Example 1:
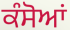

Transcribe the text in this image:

ਕੰਸੋਆਂ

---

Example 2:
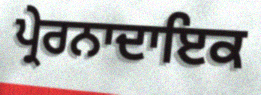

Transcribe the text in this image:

ਪ੍ਰੇਰਨਾਦਾਇਕ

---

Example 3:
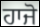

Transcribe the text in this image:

ਹਾਜੋ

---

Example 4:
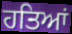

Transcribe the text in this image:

ਹਤਿਆਂ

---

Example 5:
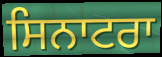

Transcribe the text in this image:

ਸਿਨਾਟਰਾ